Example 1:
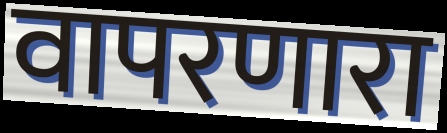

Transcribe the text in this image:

वापरणारा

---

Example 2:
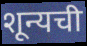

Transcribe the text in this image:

शून्यची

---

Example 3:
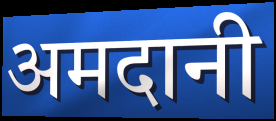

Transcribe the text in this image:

अमदानी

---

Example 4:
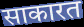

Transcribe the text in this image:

साकारत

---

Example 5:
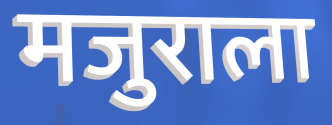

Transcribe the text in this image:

मजुराला